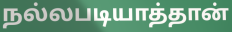
நல்லபடியாத்தான்